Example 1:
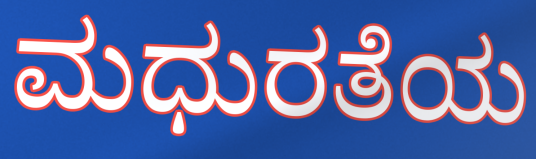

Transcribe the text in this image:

ಮಧುರತೆಯ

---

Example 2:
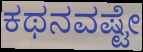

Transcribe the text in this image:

ಕಥನವಷ್ಟೇ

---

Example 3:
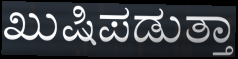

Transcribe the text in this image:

ಖುಷಿಪಡುತ್ತಾ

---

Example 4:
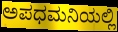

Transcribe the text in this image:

ಅಪಧಮನಿಯಲ್ಲಿ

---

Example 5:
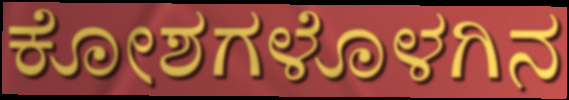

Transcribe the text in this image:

ಕೋಶಗಳೊಳಗಿನ